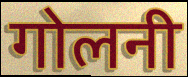
गोलनी